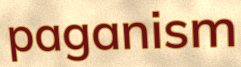
paganism